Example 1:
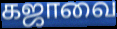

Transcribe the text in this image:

கஜாவை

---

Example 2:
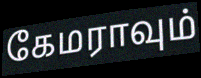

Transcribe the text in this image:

கேமராவும்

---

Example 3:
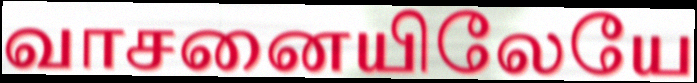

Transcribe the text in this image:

வாசனையிலேயே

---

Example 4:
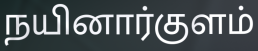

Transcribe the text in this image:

நயினார்குளம்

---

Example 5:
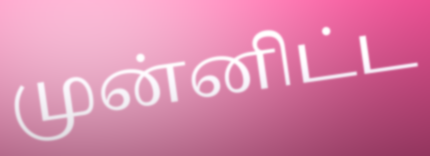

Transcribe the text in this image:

முன்னிட்ட